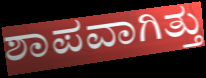
ಶಾಪವಾಗಿತ್ತು